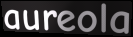
aureola